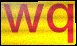
wq